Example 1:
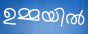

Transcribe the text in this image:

ഉമ്മയിൽ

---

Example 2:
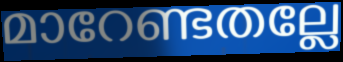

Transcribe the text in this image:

മാറേണ്ടതല്ലേ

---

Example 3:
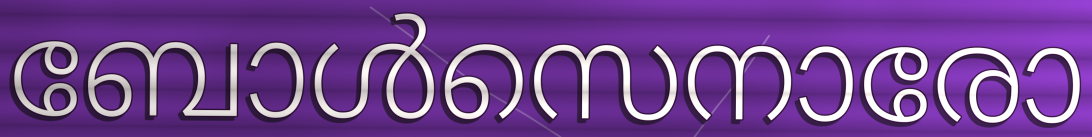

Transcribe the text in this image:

ബോൾസെനാരോ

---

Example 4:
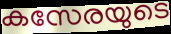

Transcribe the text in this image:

കസേരയുടെ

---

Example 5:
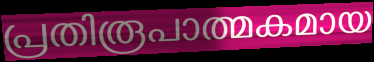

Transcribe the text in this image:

പ്രതിരൂപാത്മകമായ